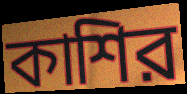
কাশির